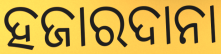
ହଜାରଦାନା